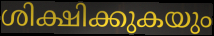
ശിക്ഷിക്കുകയും